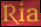
Ria